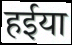
हईया